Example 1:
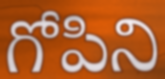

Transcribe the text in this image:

గోపిని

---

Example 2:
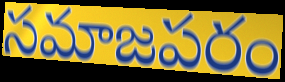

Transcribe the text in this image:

సమాజపరం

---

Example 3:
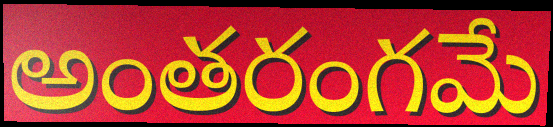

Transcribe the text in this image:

అంతరంగమే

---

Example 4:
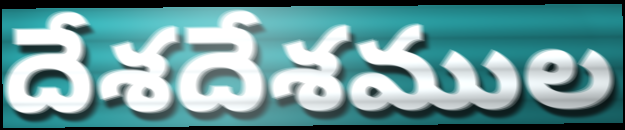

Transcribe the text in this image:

దేశదేశముల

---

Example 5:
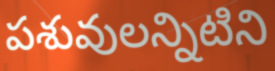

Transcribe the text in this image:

పశువులన్నిటిని